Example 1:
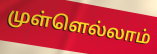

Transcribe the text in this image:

முள்ளெல்லாம்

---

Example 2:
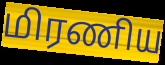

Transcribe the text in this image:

மிரணிய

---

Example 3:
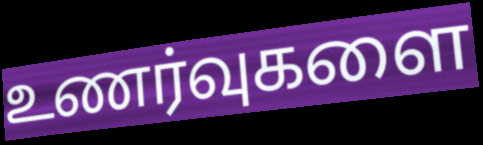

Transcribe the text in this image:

உணர்வுகளை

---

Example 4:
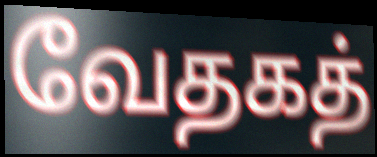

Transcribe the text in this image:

வேதகத்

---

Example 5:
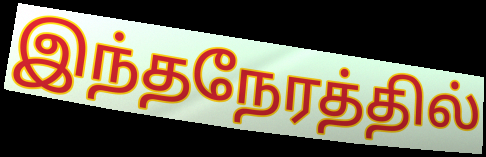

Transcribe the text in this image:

இந்தநேரத்தில்